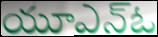
యూఎన్ఓ